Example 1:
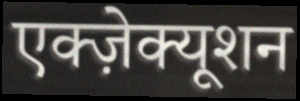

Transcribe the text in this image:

एक्ज़ेक्यूशन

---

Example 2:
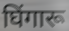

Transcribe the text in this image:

घिंगारू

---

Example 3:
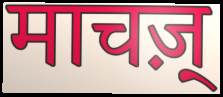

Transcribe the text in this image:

माचज़्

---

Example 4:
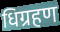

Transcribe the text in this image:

धिग्रहण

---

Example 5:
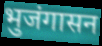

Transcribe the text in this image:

भुजंगासन